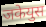
जकेयुस